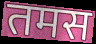
तमस